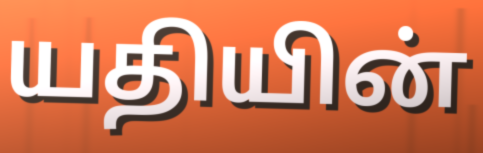
யதியின்